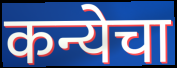
कन्येचा